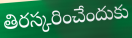
తిరస్కరించేందుకు